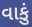
વાકું